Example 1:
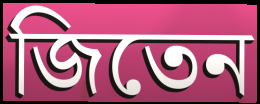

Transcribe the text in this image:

জিতেন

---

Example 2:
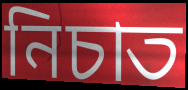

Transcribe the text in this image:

নিচাত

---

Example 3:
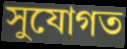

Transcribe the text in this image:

সুযোগত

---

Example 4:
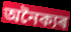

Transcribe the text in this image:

অনৈক্যৰ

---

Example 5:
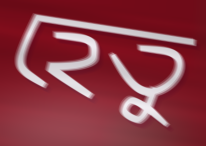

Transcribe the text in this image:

হেতু